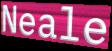
Neale